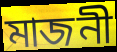
মাজনী